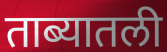
ताब्यातली